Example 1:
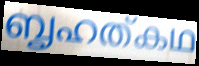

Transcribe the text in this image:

ബൃഹത്കഥ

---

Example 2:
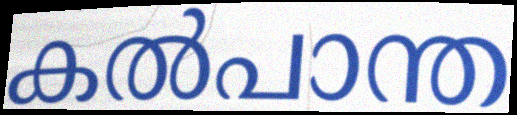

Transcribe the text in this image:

കൽപാന്ത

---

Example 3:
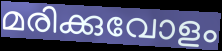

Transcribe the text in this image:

മരിക്കുവോളം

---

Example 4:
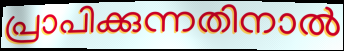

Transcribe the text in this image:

പ്രാപിക്കുന്നതിനാൽ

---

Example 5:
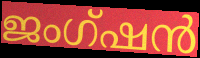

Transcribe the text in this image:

ജംഗ്ഷൻ